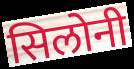
सिलोनी